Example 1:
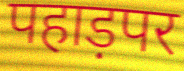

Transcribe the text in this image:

पहाड़पर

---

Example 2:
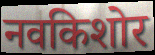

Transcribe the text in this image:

नवकिशोर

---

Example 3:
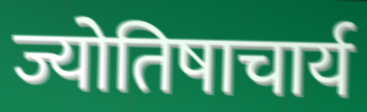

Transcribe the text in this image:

ज्योतिषाचार्य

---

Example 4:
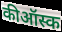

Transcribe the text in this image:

कीऑस्क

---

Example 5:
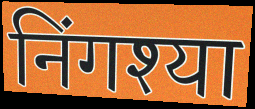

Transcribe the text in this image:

निंगश्या